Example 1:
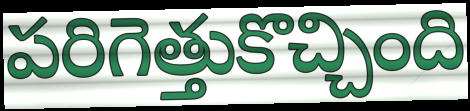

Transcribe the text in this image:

పరిగెత్తుకొచ్చింది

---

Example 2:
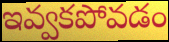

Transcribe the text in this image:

ఇవ్వకపోవడం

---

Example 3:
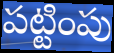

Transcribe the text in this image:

పట్టింపు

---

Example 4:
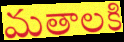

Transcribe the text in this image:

మతాలకి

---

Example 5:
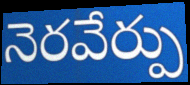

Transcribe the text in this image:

నెరవేర్పు